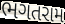
ભગતરામ